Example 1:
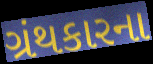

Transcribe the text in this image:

ગ્રંથકારના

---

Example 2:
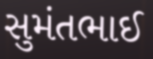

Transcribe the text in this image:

સુમંતભાઈ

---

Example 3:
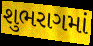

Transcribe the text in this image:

શુભરાગમાં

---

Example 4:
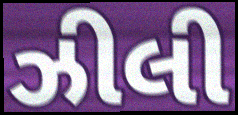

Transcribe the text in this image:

ઝીલી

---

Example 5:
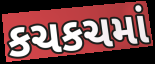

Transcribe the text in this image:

કચકચમાં